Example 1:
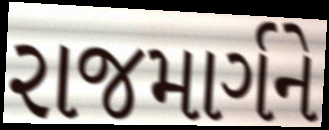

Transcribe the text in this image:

રાજમાર્ગને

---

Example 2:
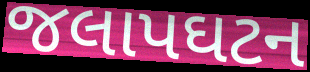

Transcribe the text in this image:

જલાપઘટન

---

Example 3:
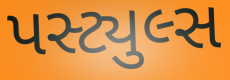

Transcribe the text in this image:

પસ્ટ્યુલ્સ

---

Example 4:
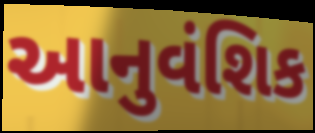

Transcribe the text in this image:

આનુવંશિક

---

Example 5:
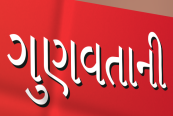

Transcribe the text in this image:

ગુણવતાની